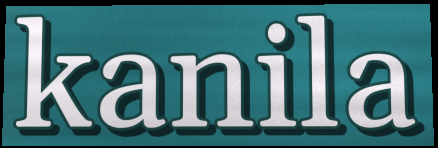
kanila